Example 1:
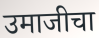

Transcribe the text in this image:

उमाजीचा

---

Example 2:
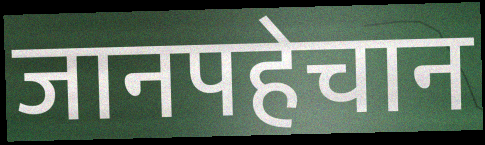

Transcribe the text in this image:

जानपहेचान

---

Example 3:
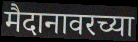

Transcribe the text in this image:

मैदानावरच्या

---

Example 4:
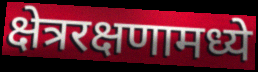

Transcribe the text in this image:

क्षेत्ररक्षणामध्ये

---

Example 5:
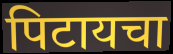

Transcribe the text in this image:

पिटायचा